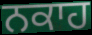
ਨਕਾਹ